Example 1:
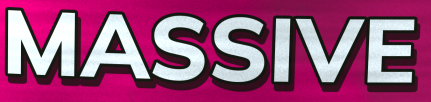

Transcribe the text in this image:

MASSIVE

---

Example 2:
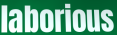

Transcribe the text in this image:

laborious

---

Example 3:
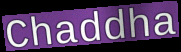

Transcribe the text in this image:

Chaddha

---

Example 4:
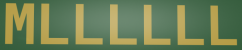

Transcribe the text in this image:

MLLLLLL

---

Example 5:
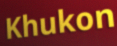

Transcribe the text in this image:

Khukon